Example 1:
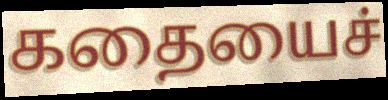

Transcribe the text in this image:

கதையைச்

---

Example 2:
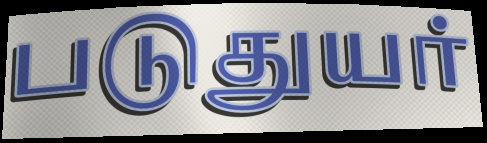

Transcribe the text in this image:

படுதுயர்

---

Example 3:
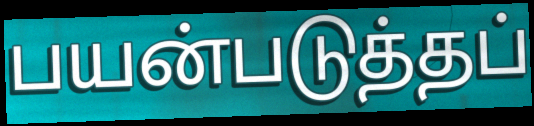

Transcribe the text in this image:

பயன்படுத்தப்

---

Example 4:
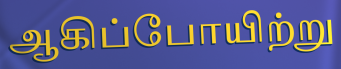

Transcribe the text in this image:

ஆகிப்போயிற்று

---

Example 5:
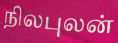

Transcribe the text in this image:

நிலபுலன்